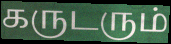
கருடரும்